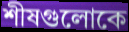
শীষগুলোকে